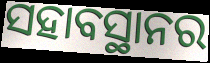
ସହାବସ୍ଥାନର